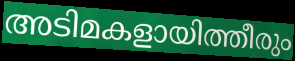
അടിമകളായിത്തീരും